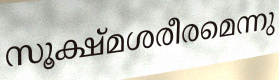
സൂക്ഷ്മശരീരമെന്നു